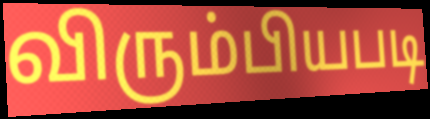
விரும்பியபடி